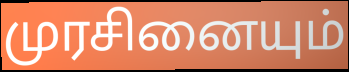
முரசினையும்